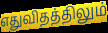
எதுவிதத்திலும்